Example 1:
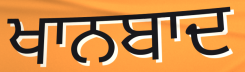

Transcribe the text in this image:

ਖਾਨਬਾਦ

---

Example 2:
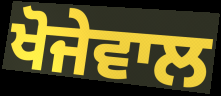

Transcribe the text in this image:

ਖੋਜੇਵਾਲ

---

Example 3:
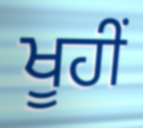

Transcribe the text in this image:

ਖੂਹੀਂ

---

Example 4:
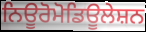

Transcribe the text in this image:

ਨਿਊਰੋਮੋਡਿਊਲੇਸ਼ਨ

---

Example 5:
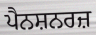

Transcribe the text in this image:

ਪੈਨਸ਼ਨਰਜ਼